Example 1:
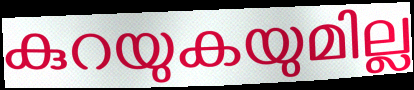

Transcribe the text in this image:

കുറയുകയുമില്ല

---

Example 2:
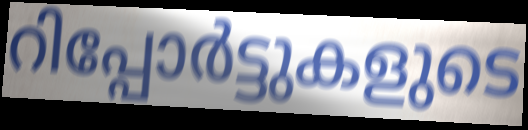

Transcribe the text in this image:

റിപ്പോർട്ടുകളുടെ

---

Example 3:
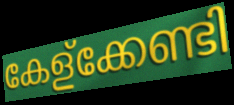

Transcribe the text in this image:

കേള്ക്കേണ്ടി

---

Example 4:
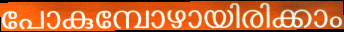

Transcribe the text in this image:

പോകുമ്പോഴായിരിക്കാം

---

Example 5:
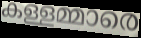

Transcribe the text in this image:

കള്ളമ്മാരെ